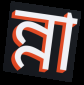
ন্না